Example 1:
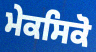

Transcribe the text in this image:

ਮੇਕਸਿਕੋ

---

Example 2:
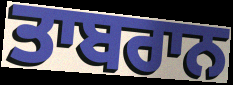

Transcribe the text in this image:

ਤਾਬਰਾਨ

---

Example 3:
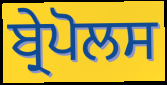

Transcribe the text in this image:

ਬ੍ਰੇਪੋਲਸ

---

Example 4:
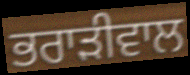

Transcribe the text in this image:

ਭਰਾੜੀਵਾਲ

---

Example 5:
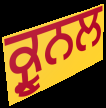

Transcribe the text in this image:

ਕ੍ਰੂਨਲ